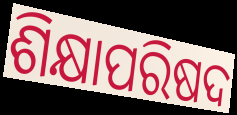
ଶିକ୍ଷାପରିଷଦ